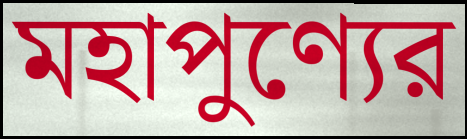
মহাপুণ্যের